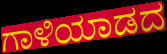
ಗಾಳಿಯಾಡದ